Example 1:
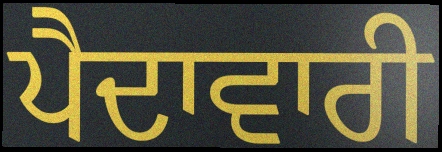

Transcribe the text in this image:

ਪੈਦਾਵਾਰੀ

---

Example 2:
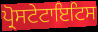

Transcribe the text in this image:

ਪ੍ਰੋਸਟੇਟਾਇਟਿਸ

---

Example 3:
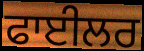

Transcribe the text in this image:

ਫਾਈਲਰ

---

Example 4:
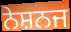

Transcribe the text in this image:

ਨੇਸ਼ਨਜ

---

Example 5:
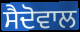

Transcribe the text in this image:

ਸੈਦੋਵਾਲ